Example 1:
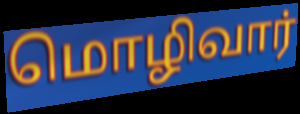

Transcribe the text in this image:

மொழிவார்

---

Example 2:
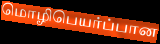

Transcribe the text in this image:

மொழிபெயர்ப்பான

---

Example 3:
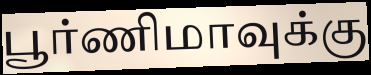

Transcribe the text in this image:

பூர்ணிமாவுக்கு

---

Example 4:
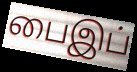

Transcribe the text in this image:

பைஇப்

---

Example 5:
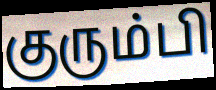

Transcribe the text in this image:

குரும்பி